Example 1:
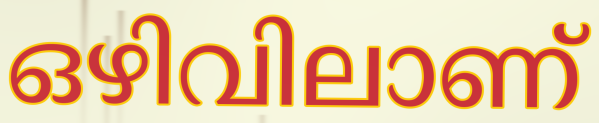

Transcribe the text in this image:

ഒഴിവിലാണ്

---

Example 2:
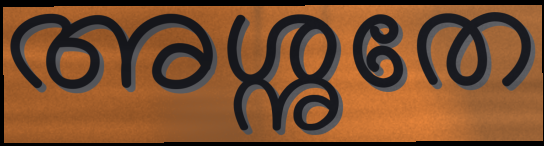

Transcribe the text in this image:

അശ്നുതേ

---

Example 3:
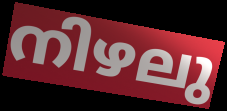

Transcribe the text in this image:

നിഴലു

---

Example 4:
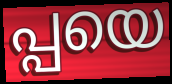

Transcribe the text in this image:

പ്പയെ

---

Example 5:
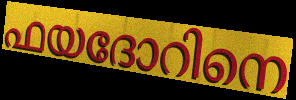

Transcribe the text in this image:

ഫയദോറിനെ